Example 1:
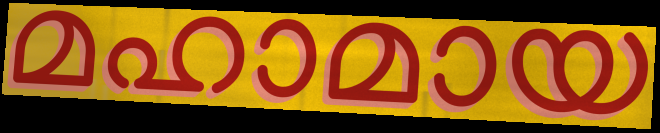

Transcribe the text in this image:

മഹാമായ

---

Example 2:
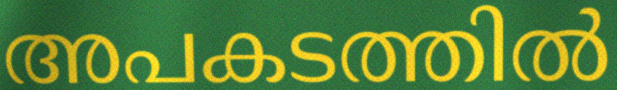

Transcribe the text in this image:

അപകടത്തിൽ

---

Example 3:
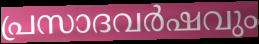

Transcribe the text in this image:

പ്രസാദവർഷവും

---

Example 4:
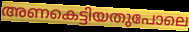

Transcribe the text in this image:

അണകെട്ടിയതുപോലെ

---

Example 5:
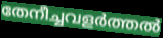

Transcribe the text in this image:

തേനീച്ചവളർത്തൽ